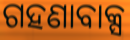
ଗହଣାବାକ୍ସ